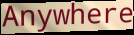
Anywhere